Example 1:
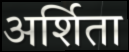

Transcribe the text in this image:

अर्शिता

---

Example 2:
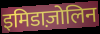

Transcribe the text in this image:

इमिडाज़ोलिन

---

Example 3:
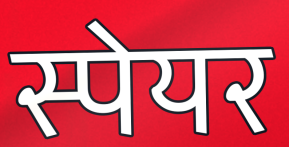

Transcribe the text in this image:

स्पेयर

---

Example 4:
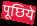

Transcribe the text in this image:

पूछिये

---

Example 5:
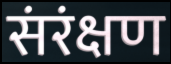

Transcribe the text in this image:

संरंक्षण